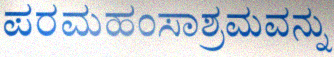
ಪರಮಹಂಸಾಶ್ರಮವನ್ನು